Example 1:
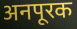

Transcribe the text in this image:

अनपूरक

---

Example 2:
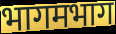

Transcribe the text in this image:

भागमभाग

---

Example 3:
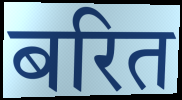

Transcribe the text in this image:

बरित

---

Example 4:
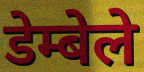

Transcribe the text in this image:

डेम्बेले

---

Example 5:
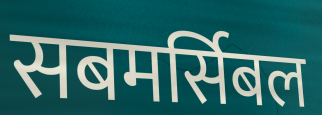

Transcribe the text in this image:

सबमर्सिबल